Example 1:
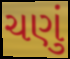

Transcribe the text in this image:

ચણું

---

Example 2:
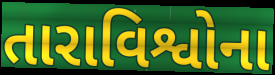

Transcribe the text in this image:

તારાવિશ્વોના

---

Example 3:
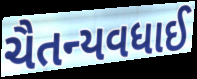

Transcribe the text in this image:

ચૈતન્યવધાઈ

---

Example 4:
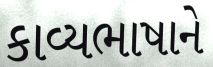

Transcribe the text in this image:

કાવ્યભાષાને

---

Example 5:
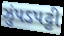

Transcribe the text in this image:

ઝુંપડપટ્ટી